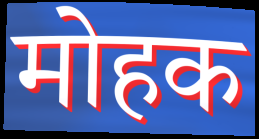
मोहक